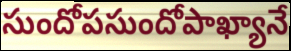
సుందోపసుందోపాఖ్యానే